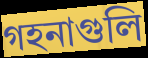
গহনাগুলি